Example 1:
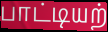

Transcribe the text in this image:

பாட்டியற்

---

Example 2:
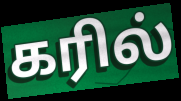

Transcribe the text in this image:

கரில்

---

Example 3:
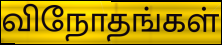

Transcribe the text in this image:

விநோதங்கள்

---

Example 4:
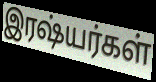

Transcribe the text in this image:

இரஷ்யர்கள்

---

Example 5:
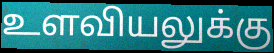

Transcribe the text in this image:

உளவியலுக்கு